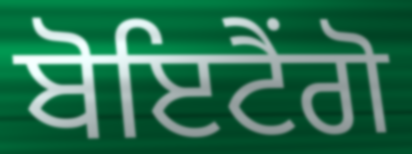
ਬੋਇਟੈਂਗੋ